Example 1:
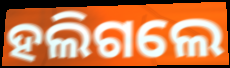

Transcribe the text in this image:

ହଲିଗଲେ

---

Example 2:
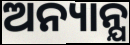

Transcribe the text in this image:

ଅନ୍ୟାନ୍ଯ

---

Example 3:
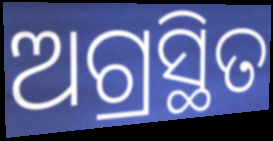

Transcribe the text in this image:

ଅଗ୍ରସ୍ଥିତ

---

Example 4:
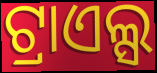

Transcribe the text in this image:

ଟ୍ରାଏଲ୍ସ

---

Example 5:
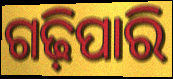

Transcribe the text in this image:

ଗଢ଼ିପାରି